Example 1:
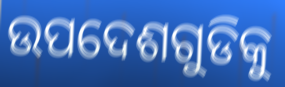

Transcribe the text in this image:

ଉପଦେଶଗୁଡିକୁ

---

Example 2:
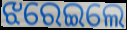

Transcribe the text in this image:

ଝରେଇଲେ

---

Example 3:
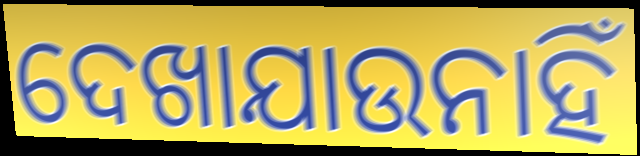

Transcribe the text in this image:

ଦେଖାଯାଉନାହିଁ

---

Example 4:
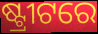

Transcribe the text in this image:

ଷ୍ଟ୍ରୀଟରେ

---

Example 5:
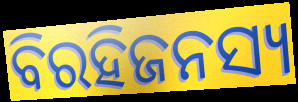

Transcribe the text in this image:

ବିରହିଜନସ୍ୟ